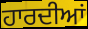
ਹਾਰਦੀਆਂ